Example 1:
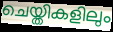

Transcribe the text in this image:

ചെയ്തികളിലും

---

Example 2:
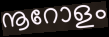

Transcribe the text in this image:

നൂറോളം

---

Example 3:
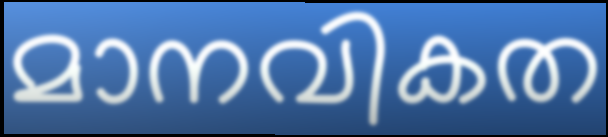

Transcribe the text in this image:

മാനവികത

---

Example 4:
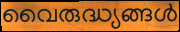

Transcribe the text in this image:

വൈരുദ്ധ്യങ്ങൾ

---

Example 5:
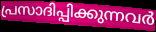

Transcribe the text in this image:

പ്രസാദിപ്പിക്കുന്നവർ